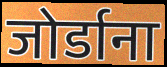
जोर्डाना